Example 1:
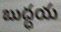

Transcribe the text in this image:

బుద్ధయ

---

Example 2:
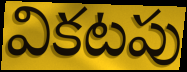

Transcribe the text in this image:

వికటపు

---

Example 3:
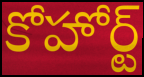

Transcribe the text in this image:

కోహోర్ట్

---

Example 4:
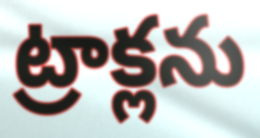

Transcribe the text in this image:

ట్రాక్లను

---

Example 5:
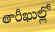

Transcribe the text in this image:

తారీఖుల్లో